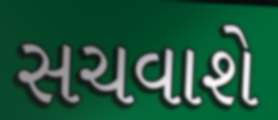
સચવાશે